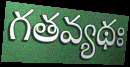
గతవ్యథః